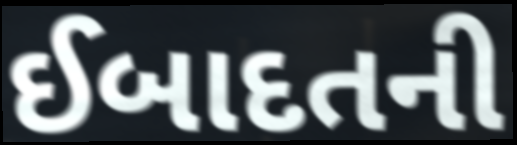
ઈબાદતની